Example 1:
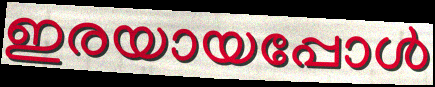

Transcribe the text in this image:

ഇരയായപ്പോൾ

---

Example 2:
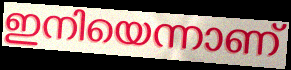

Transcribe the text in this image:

ഇനിയെന്നാണ്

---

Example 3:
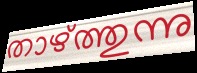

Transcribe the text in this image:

താഴ്ത്തുന്നു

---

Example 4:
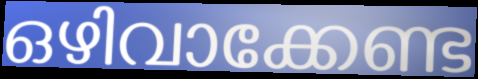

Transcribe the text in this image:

ഒഴിവാക്കേണ്ട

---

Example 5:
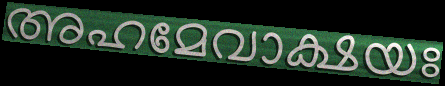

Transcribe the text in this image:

അഹമേവാക്ഷയഃ